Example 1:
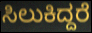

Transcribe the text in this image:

ಸಿಲುಕಿದ್ದರೆ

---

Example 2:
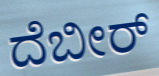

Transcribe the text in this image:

ದೆಬೀರ್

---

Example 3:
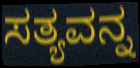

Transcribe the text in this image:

ಸತ್ಯವನ್ನ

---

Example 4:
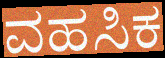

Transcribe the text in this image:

ವಹಸಿಕ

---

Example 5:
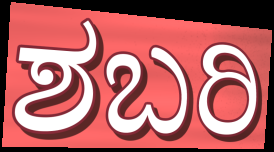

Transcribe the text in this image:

ಶಬರಿ